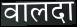
वालदा